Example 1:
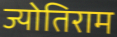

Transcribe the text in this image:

ज्योतिराम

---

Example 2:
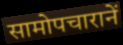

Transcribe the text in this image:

सामोपचारानें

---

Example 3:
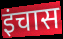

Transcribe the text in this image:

इंचास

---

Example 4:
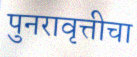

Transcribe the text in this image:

पुनरावृत्तीचा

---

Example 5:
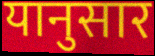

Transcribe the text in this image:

यानुसार